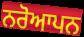
ਨਰੋਆਪਨ